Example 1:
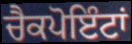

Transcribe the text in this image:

ਚੈਕਪੋਇੰਟਾਂ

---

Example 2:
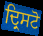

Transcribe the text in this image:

ਦ੍ਰਿਸਟੋ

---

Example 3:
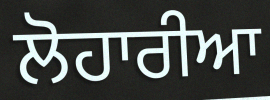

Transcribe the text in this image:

ਲੋਹਾਰੀਆ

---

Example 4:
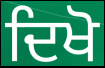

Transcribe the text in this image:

ਦਿਖੋ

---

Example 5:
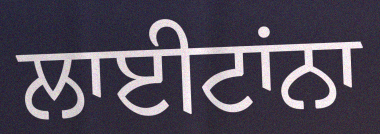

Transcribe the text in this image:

ਲਾਈਟਾਂਨਾ